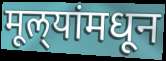
मूल्यांमधून